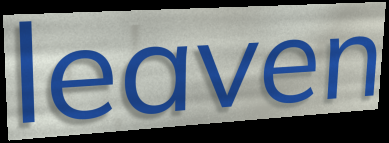
leaven